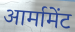
आर्मामेंट